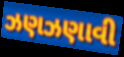
ઝણઝણાવી